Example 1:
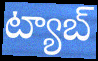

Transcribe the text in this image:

ట్యాబ్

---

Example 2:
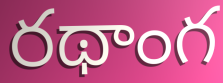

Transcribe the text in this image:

రథాంగ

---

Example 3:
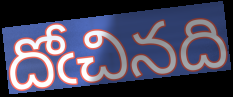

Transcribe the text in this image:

దోఁచినది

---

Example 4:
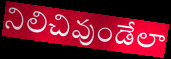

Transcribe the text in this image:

నిలిచివుండేలా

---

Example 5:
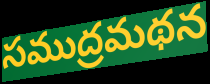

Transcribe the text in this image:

సముద్రమథన